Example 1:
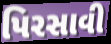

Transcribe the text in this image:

પિરસાવી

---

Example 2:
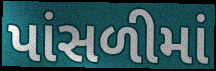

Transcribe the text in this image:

પાંસળીમાં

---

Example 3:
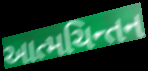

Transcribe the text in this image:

આત્મચિન્તન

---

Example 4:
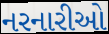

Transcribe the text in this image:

નરનારીઓ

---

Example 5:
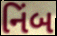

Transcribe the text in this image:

નિંબ